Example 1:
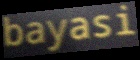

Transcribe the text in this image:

bayasi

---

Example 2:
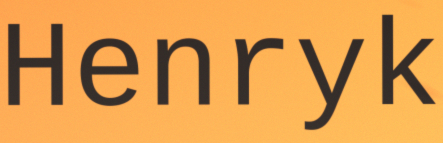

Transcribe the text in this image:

Henryk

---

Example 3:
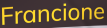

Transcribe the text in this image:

Francione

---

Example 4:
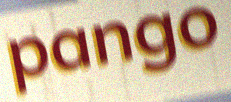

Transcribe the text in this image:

pango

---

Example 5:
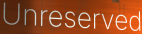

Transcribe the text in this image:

Unreserved